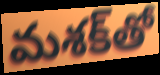
మశక్‌తో